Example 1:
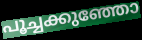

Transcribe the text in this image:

പൂച്ചക്കുഞ്ഞോ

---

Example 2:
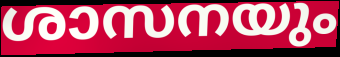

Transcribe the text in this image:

ശാസനയും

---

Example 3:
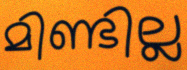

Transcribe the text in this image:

മിണ്ടില്ല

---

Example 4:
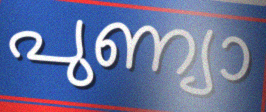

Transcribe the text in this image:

പുണ്യാ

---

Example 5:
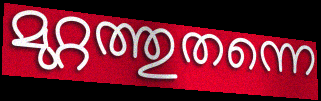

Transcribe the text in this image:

മുറ്റത്തുതന്നെ